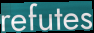
refutes